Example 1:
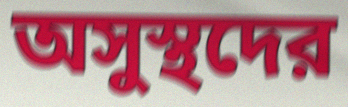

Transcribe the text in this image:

অসুস্থদের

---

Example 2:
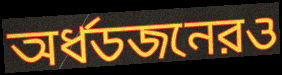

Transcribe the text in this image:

অর্ধডজনেরও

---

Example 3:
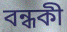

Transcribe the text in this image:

বন্ধকী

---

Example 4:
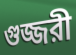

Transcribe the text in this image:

গুজ্জরী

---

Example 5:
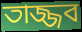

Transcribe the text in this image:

তাজ্জব